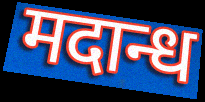
मदान्ध